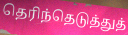
தெரிந்தெடுத்துத்